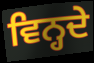
ਵਿਨ੍ਹਦੇ